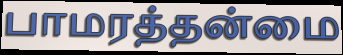
பாமரத்தன்மை